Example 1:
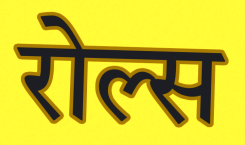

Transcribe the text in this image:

रोल्स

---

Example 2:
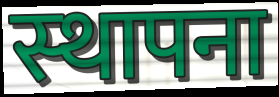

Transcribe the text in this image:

स्‍थापना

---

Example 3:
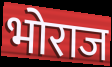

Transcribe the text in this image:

भोराज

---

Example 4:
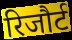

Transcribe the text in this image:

रिजौर्ट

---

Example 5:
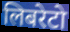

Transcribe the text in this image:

लिबरेटो